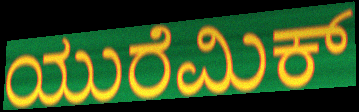
ಯುರೆಮಿಕ್